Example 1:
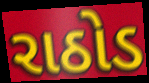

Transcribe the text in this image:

રાઠોડ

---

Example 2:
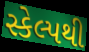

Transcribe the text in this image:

સ્કેલ્પથી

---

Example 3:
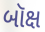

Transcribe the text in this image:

બૉક્ષ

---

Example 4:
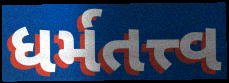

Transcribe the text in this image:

ધર્મતત્ત્વ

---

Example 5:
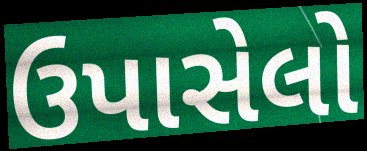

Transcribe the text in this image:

ઉપાસેલો